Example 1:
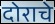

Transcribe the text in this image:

दोराचे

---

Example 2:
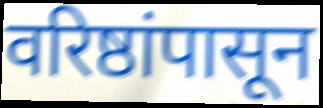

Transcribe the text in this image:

वरिष्ठांपासून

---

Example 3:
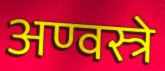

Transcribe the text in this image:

अण्वस्त्रे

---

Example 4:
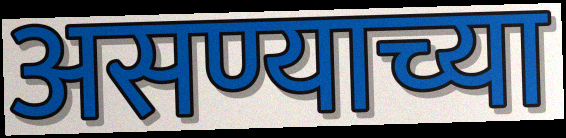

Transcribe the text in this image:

असण्याच्या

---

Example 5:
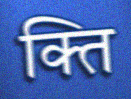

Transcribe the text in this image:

क्ति